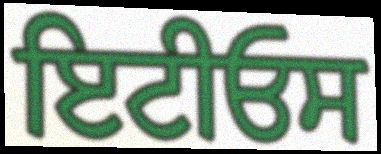
ਇਟੀਓਸ